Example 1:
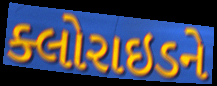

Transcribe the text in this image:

ક્લોરાઇડને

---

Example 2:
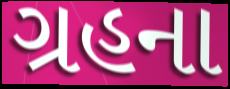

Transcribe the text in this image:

ગ્રહના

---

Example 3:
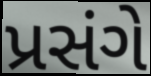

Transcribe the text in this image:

પ્રસંગે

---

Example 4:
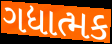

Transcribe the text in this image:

ગદ્યાત્મક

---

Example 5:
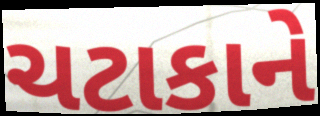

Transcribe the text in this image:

ચટાકાને